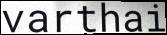
varthai